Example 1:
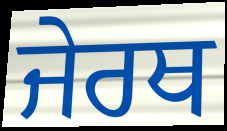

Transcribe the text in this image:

ਜੇਰਥ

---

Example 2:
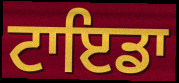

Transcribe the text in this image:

ਟਾਇਡਾ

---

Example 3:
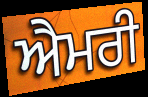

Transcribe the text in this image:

ਐਮਰੀ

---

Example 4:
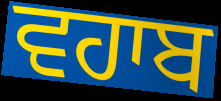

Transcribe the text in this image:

ਵਹਾਬ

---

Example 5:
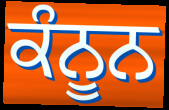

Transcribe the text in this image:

ਕੰਨੂਨ